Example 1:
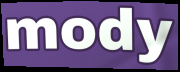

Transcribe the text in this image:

mody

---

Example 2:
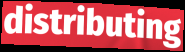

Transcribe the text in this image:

distributing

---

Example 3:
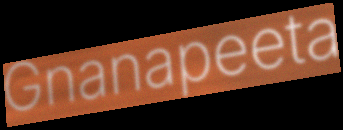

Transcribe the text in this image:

Gnanapeeta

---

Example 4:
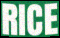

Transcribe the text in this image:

RICE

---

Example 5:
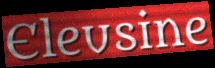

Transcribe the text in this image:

Eleusine